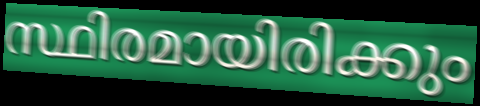
സ്ഥിരമായിരിക്കും